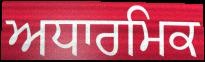
ਅਧਾਰਮਿਕ